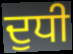
ਦੁਧੀ